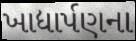
ખાદ્યાર્પણના